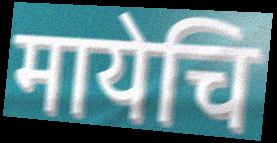
मायेचि